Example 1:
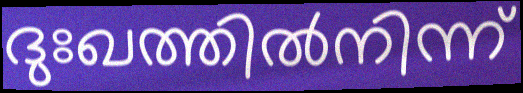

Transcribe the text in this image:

ദുഃഖത്തിൽനിന്ന്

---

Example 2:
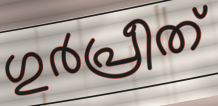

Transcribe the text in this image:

ഗുർപ്രീത്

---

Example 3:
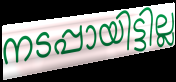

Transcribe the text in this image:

നടപ്പായിട്ടില്ല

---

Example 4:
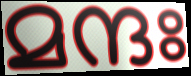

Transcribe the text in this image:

മന്ദഃ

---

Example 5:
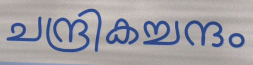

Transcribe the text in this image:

ചന്ദ്രികച്ചന്ദം